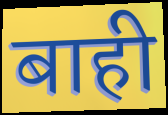
बाही